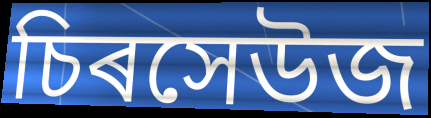
চিৰসেউজ